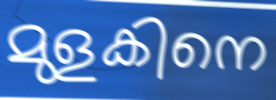
മുളകിനെ